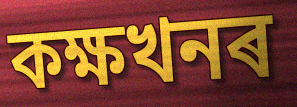
কক্ষখনৰ